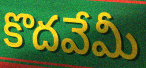
కొదవేమీ